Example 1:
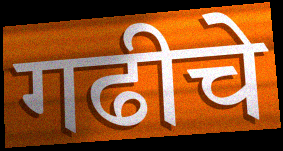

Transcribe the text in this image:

गढीचे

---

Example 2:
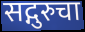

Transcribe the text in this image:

सद्गुरुचा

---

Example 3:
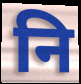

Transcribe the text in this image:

नि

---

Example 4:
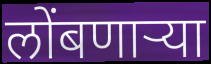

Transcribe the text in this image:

लोंबणार्‍या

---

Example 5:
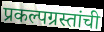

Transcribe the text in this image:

प्रकल्पग्रस्तांची